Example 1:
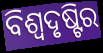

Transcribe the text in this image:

ବିଶ୍ୱଦୃଷ୍ଟିର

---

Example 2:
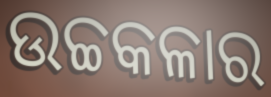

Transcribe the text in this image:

ଉଚ୍ଚକଳାର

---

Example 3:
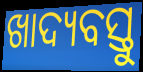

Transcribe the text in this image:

ଖାଦ୍ୟବସ୍ତୁ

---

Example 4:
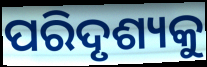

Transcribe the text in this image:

ପରିଦୃଶ୍ୟକୁ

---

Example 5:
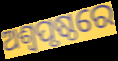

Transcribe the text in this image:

ଅଶ୍ଵପୃଷ୍ଠରେ